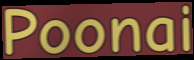
Poonai